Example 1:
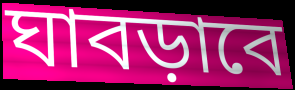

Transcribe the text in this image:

ঘাবড়াবে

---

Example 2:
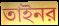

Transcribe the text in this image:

তাইনর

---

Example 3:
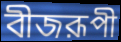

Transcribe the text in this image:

বীজরূপী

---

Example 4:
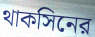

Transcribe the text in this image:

থাকসিনের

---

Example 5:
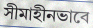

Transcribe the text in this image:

সীমাহীনভাবে